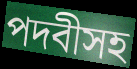
পদবীসহ